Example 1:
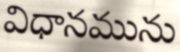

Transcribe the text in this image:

విధానమును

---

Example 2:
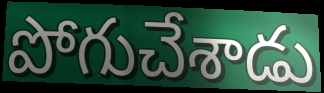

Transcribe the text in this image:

పోగుచేశాడు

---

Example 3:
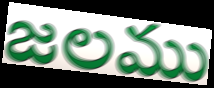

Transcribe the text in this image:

జలము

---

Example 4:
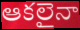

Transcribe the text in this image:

ఆకలైనా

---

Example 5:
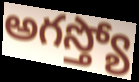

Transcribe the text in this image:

అగస్త్యో